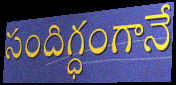
సందిగ్ధంగానే